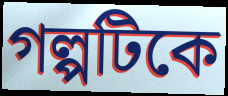
গল্পটিকে